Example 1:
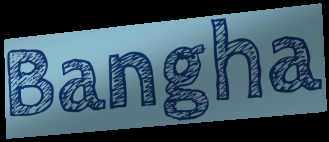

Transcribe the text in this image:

Bangha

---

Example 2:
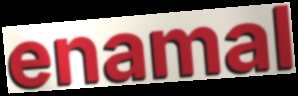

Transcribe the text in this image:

enamal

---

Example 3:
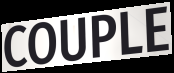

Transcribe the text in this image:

COUPLE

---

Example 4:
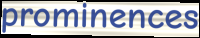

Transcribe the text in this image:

prominences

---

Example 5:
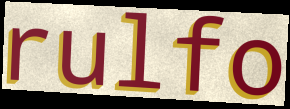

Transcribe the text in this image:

rulfo